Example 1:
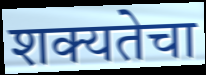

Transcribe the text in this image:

शक्यतेचा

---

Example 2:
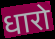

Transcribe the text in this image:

धारो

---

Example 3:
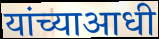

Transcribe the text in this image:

यांच्याआधी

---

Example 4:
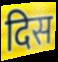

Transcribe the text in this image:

दिस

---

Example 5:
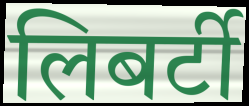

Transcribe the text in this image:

लिबर्टी